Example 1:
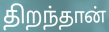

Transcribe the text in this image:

திறந்தான்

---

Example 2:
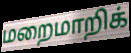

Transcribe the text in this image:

மறைமாறிக்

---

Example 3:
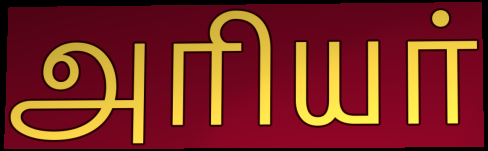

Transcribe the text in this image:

அரியர்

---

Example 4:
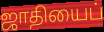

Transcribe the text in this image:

ஜாதியைப்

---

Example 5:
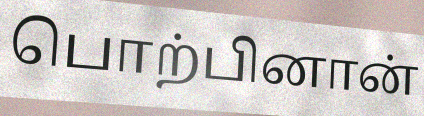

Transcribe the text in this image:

பொற்பினான்